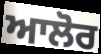
ਆਲੋਰ